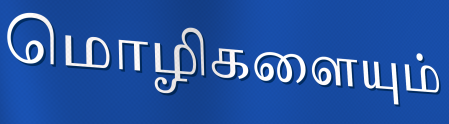
மொழிகளையும்